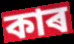
কাৰ